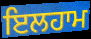
ਇਲਹਾਮ